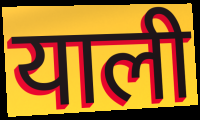
याली